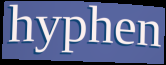
hyphen